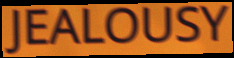
JEALOUSY